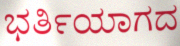
ಭರ್ತಿಯಾಗದ